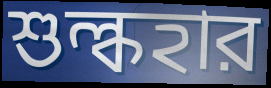
শুল্কহার